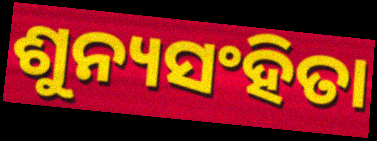
ଶୁନ୍ୟସଂହିତା